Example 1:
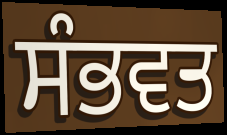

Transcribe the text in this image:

ਸੰਭਵਤ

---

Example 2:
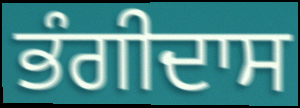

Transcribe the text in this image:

ਭੰਗੀਦਾਸ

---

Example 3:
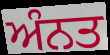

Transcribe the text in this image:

ਅੰਨਤ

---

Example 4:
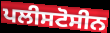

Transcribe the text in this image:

ਪਲੀਸਟੋਸੀਨ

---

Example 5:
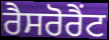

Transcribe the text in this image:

ਰੈਸਰੋਰੈਂਟ